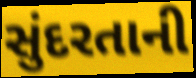
સુંદરતાની